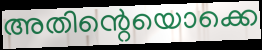
അതിന്റെയൊക്കെ